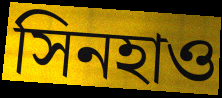
সিনহাও